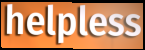
helpless